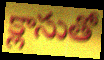
క్లాసుతో